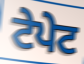
ਟੇਪੇਟ